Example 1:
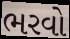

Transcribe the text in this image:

ભરવો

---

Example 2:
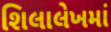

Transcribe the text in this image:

શિલાલેખમાં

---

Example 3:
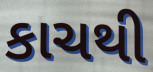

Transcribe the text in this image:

કાચથી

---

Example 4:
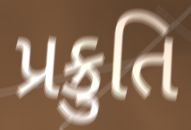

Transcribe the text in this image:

પ્રક્રુતિ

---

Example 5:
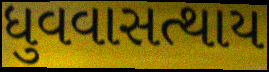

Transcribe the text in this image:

ધુવવાસત્થાય